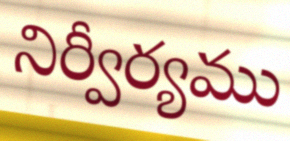
నిర్వీర్యము